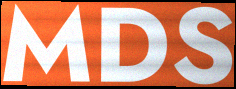
MDS